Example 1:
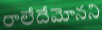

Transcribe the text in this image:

రాలేదేమోనని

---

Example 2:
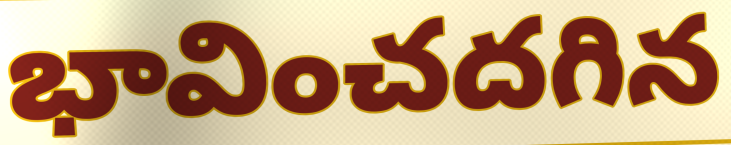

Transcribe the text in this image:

భావించదగిన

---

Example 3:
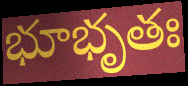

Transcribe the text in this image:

భూభృతః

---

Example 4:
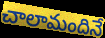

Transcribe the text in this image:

చాలామందినే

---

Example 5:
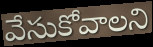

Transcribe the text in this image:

వేసుకోవాలని